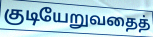
குடியேறுவதைத்